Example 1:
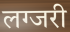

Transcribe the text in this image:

लग्‍जरी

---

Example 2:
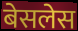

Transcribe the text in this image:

बेसलेस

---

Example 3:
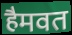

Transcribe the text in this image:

हैमवत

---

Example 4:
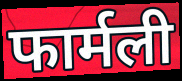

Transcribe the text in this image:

फार्मली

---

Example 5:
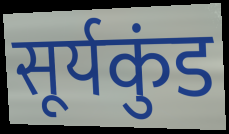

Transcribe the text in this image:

सूर्यकुंड